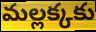
మల్లక్కకు